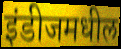
इंडीजमधील